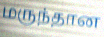
மருந்தான